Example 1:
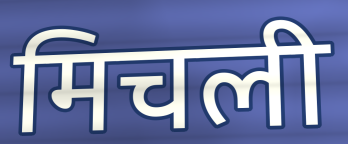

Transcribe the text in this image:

मिचली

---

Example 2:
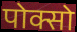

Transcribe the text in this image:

पोक्सो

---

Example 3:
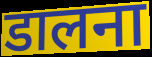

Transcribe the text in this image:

डालना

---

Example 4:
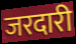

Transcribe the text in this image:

जरदारी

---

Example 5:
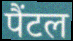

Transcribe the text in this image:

पैंटल